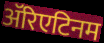
ॲरिएटिनम